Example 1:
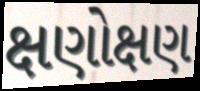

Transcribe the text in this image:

ક્ષણોક્ષણ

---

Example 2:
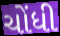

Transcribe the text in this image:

ચોંધી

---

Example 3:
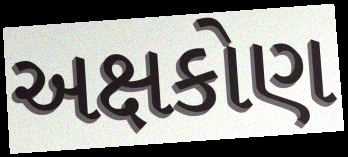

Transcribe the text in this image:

અક્ષકોણ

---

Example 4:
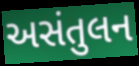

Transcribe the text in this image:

અસંતુલન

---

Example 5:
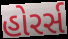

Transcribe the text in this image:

હોરર્સ